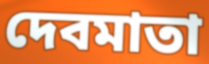
দেবমাতা